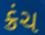
ક્રંચ